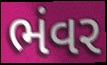
ભંવર